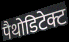
पैथोडिटेक्ट